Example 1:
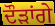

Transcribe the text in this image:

ਦੌੜਾਂਗੇ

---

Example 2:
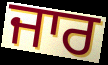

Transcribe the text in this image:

ਜਾਰ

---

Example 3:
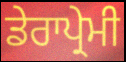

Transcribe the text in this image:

ਡੇਰਾਪ੍ਰੇਮੀ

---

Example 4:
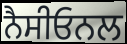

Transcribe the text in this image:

ਨੈਸੀਓਨਲ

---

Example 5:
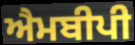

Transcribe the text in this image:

ਐਮਬੀਪੀ